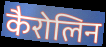
कैरोलिन